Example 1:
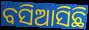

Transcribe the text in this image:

ବସିଆସିଛି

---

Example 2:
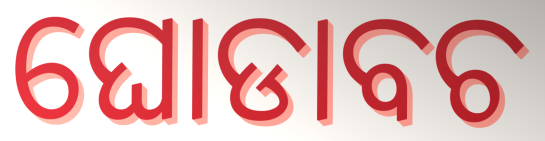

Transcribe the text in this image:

ଘୋଡାବଚ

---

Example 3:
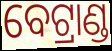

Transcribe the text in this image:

ବେଟ୍ରାଣ୍ଡ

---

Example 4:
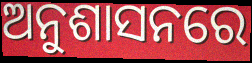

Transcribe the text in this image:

ଅନୁଶାସନରେ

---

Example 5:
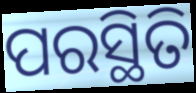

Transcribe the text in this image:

ପରସ୍ଥିତି